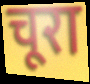
चूरा